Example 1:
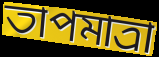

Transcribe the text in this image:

তাপমাত্রা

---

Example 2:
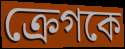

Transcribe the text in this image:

ক্রেগকে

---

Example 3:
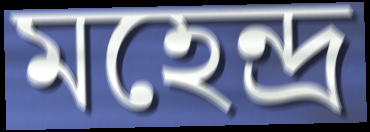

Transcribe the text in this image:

মহেন্দ্র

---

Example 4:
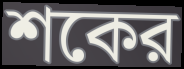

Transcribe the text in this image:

শকের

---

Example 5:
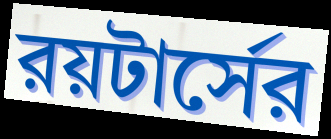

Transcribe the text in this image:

রয়টার্সের